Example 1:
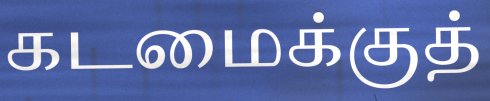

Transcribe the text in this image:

கடமைக்குத்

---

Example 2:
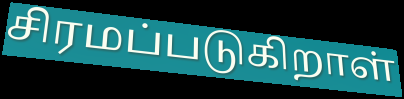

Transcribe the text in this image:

சிரமப்படுகிறாள்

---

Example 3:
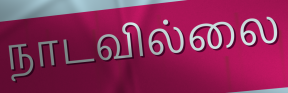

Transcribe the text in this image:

நாடவில்லை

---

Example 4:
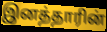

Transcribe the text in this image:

இனத்தாரின்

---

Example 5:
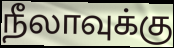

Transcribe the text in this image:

நீலாவுக்கு